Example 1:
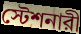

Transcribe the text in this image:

স্টেশনারী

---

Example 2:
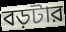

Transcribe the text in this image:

বড়টার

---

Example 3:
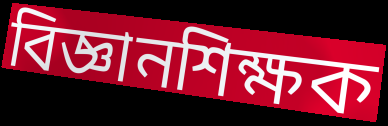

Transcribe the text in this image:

বিজ্ঞানশিক্ষক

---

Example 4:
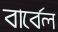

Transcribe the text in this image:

বার্বেল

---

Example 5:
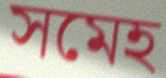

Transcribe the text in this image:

সমেহ